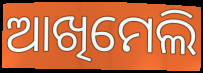
ଆଖିମେଲି